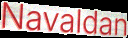
Navaldan